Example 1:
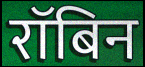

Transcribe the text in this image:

रॉबिन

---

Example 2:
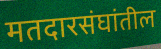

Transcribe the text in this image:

मतदारसंघांतील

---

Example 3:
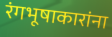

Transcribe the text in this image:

रंगभूषाकारांना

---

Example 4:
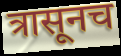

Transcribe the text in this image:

त्रासूनच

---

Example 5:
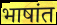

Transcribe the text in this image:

भाषांत